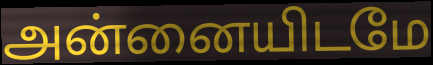
அன்னையிடமே